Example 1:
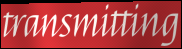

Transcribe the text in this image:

transmitting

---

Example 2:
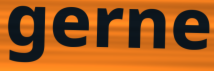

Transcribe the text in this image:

gerne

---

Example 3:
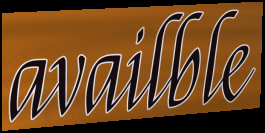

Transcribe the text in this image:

availble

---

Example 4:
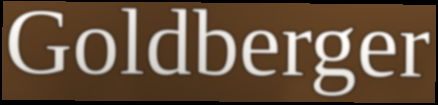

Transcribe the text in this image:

Goldberger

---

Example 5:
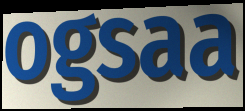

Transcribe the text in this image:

ogsaa